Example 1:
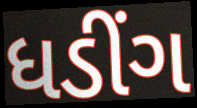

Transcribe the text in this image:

ધડીંગ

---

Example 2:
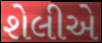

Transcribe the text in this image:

શેલીએ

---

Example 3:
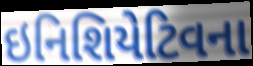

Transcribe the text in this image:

ઇનિશિયેટિવના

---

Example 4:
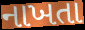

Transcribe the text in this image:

નાખતા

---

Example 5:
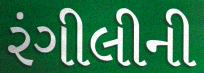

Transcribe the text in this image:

રંગીલીની